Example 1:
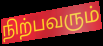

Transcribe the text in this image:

நிற்பவரும்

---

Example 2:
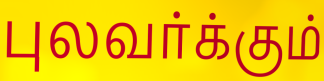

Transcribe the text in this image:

புலவர்க்கும்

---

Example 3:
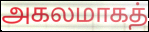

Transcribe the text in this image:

அகலமாகத்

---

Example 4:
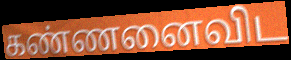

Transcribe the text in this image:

கண்ணனைவிட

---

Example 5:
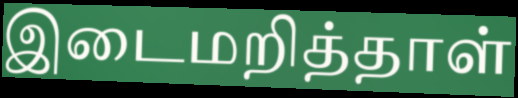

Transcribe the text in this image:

இடைமறித்தாள்